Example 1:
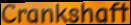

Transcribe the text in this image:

Crankshaft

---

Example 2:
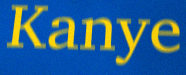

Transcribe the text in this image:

Kanye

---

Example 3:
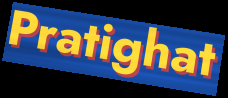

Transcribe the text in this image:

Pratighat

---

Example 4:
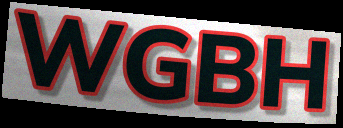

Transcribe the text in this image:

WGBH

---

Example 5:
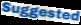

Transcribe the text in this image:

Suggested